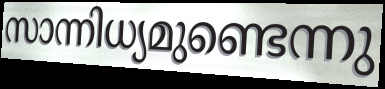
സാന്നിധ്യമുണ്ടെന്നു